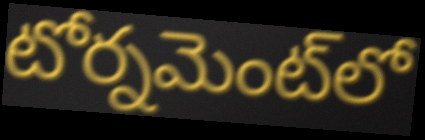
టోర్నమెంట్‌లో